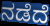
ನಡೆದೆ